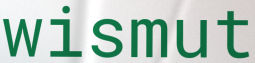
wismut